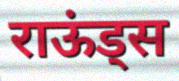
राऊंड्स